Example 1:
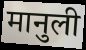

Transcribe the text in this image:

मानुली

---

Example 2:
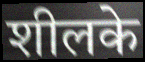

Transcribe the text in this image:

शीलके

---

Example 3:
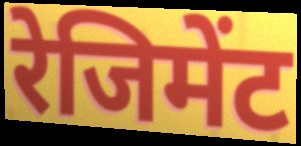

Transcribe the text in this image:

रेजिमेंट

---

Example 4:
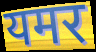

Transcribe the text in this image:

यमर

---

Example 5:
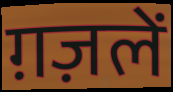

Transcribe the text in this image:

ग़ज़लें